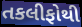
તકલીફોથી